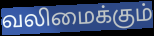
வலிமைக்கும்